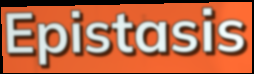
Epistasis